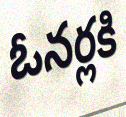
ఓనర్లకి